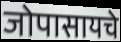
जोपासायचे